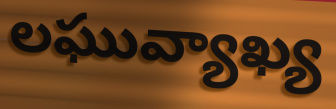
లఘువ్యాఖ్య